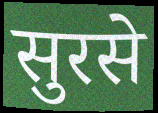
सुरसे